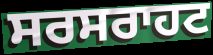
ਸਰਸਰਾਹਟ